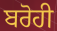
ਬਰੋਹੀ